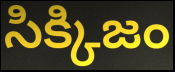
సిక్కిజం